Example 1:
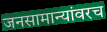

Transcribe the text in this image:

जनसामान्यांवरच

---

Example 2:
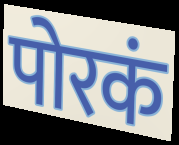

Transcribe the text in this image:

पोरकं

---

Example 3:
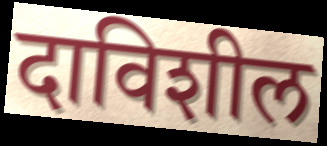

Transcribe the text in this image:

दाविशील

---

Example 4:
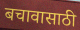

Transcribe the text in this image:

बचावासाठी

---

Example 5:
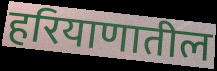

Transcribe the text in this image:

हरियाणातील